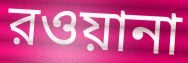
রওয়ানা